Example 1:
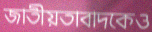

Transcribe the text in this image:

জাতীয়তাবাদকেও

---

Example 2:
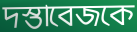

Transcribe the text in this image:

দস্তাবেজকে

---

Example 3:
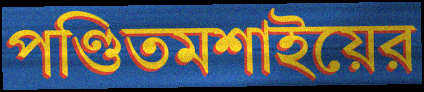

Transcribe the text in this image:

পণ্ডিতমশাইয়ের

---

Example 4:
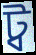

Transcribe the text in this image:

ট্ব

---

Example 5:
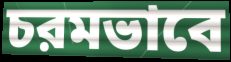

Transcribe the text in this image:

চরমভাবে